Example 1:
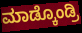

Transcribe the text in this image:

ಮಾಡ್ಕೊಂಡ್ರಿ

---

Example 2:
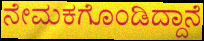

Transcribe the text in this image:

ನೇಮಕಗೊಂಡಿದ್ದಾನೆ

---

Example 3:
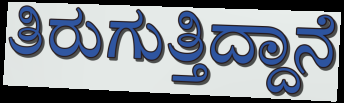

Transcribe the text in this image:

ತಿರುಗುತ್ತಿದ್ದಾನೆ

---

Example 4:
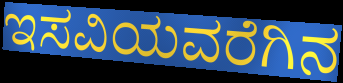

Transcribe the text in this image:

ಇಸವಿಯವರೆಗಿನ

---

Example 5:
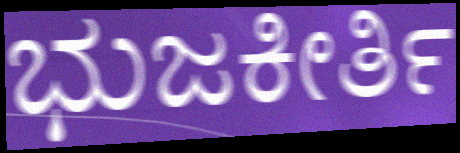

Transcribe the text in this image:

ಭುಜಕೀರ್ತಿ